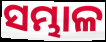
ସମ୍ଭାଳ